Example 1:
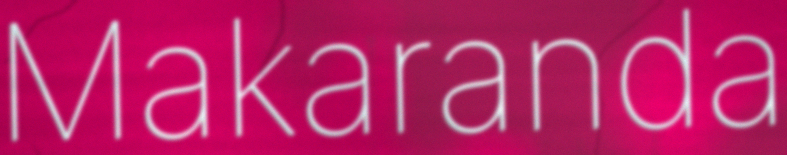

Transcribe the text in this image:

Makaranda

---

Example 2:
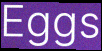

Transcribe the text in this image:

Eggs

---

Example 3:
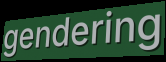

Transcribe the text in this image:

gendering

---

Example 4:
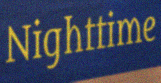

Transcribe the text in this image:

Nighttime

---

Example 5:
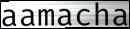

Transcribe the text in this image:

aamacha